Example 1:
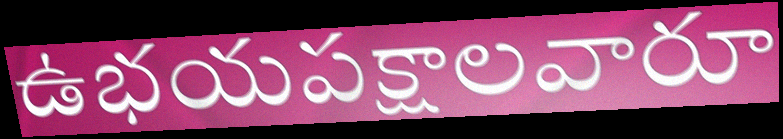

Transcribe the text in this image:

ఉభయపక్షాలవారూ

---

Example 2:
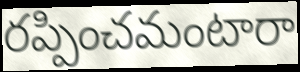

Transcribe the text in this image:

రప్పించమంటారా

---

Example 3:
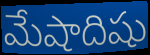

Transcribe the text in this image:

మేషాదిషు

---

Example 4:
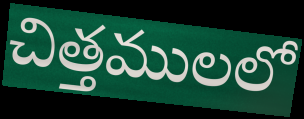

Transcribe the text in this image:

చిత్తములలో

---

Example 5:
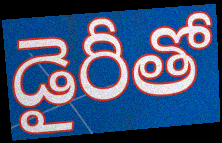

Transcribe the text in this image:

డైరీతో